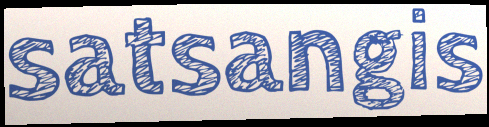
satsangis